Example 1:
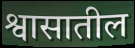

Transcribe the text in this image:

श्वासातील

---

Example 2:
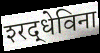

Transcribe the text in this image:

श्रद्धेविना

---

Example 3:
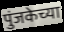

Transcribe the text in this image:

पुंजकेच्या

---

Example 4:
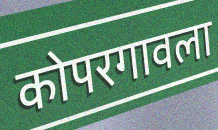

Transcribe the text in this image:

कोपरगावला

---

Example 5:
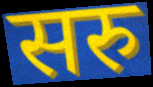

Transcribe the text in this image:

सरु